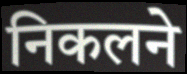
निकलने